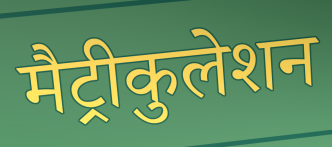
मैट्रीकुलेशन